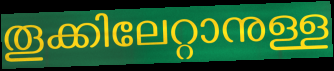
തൂക്കിലേറ്റാനുള്ള